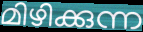
മിഴിക്കുന്ന